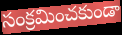
సంక్రమించకుండా